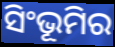
ସିଂଭୂମିର